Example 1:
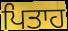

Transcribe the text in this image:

ਪਿਤਾਹ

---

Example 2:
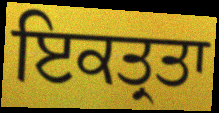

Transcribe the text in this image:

ਇਕਤ੍ਰਤਾ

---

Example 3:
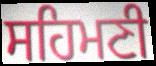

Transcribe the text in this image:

ਸਹਿਮਣੀ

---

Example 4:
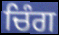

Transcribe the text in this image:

ਚਿੰਗ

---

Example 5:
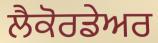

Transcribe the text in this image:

ਲੈਕੋਰਡੇਅਰ